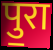
पु॒रा